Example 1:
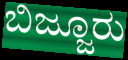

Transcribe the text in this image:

ಬಿಜ್ಜೂರು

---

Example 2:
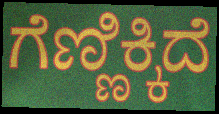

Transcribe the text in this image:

ಗೆಣ್ಣಿಕ್ಕಿದೆ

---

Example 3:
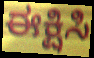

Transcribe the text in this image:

ಈಕ್ಷಿಸಿ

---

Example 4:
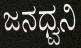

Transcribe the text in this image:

ಜನಧ್ವನಿ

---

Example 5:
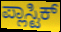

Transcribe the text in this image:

ಪ್ಲಾಸ್ಟಿಕ್